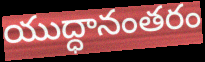
యుద్ధానంతరం